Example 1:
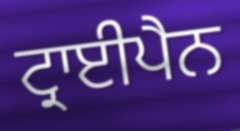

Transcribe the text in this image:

ਟ੍ਰਾਈਪੈਨ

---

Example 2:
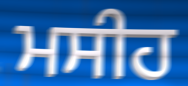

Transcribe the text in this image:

ਮਸੀਹ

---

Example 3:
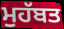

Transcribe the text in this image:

ਮੁਹੱਬਤ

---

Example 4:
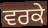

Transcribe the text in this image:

ਵਰਕੇ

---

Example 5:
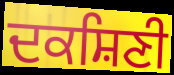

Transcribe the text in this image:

ਦਕਸ਼ਿਣੀ